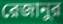
রেজানুর